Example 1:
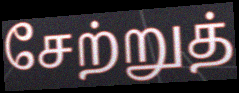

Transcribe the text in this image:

சேற்றுத்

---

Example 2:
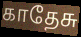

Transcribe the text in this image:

காதேசு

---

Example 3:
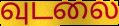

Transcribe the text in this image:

வுடலை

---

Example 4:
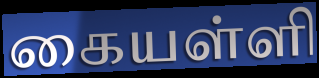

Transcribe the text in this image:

கையள்ளி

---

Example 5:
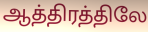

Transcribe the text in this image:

ஆத்திரத்திலே